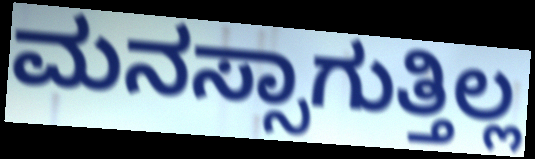
ಮನಸ್ಸಾಗುತ್ತಿಲ್ಲ